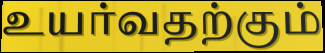
உயர்வதற்கும்